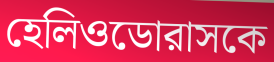
হেলিওডোরাসকে